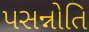
પસન્નોતિ